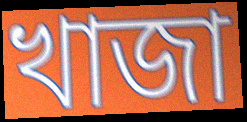
খাজা